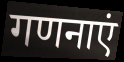
गणनाएं